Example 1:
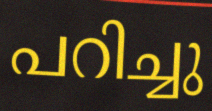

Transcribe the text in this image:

പറിച്ചു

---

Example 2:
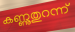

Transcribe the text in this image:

കണ്ണുതുറന്ന്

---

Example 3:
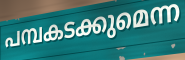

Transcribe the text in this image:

പമ്പകടക്കുമെന്ന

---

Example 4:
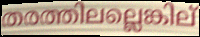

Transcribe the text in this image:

തരത്തിലല്ലെങ്കില്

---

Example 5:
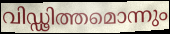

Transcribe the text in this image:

വിഡ്ഢിത്തമൊന്നും